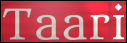
Taari